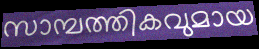
സാമ്പത്തികവുമായ